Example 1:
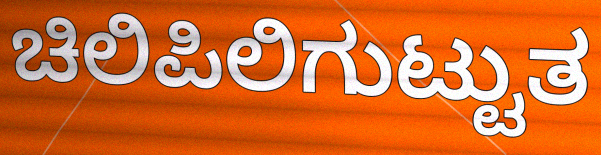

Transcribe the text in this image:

ಚಿಲಿಪಿಲಿಗುಟ್ಟುತ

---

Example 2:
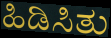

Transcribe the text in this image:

ಹಿಡಿಸಿತು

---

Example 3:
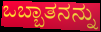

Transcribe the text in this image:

ಒಬ್ಬಾತನನ್ನು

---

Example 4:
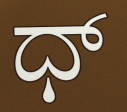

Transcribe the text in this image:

ಧ್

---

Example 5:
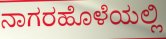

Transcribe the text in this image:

ನಾಗರಹೊಳೆಯಲ್ಲಿ